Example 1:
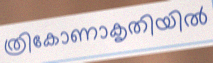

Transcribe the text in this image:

ത്രികോണാകൃതിയിൽ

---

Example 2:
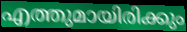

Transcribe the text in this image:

എത്തുമായിരിക്കും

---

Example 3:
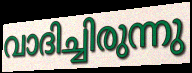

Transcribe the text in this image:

വാദിച്ചിരുന്നു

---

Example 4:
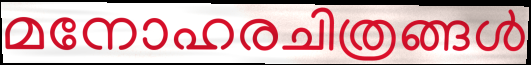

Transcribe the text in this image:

മനോഹരചിത്രങ്ങൾ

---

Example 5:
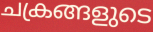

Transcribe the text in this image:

ചക്രങ്ങളുടെ